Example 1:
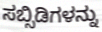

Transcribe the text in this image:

ಸಬ್ಸಿಡಿಗಳನ್ನು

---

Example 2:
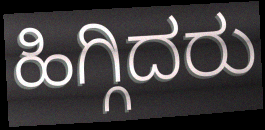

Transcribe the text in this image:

ಹಿಗ್ಗಿದರು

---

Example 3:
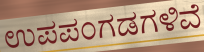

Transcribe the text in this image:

ಉಪಪಂಗಡಗಳಿವೆ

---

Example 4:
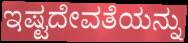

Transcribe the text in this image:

ಇಷ್ಟದೇವತೆಯನ್ನು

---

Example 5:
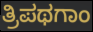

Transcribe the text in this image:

ತ್ರಿಪಥಗಾಂ